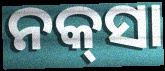
ନକ୍‍ସା